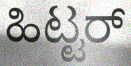
ಹಿಟ್ಟರ್